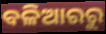
ବଳିଆରରୁ